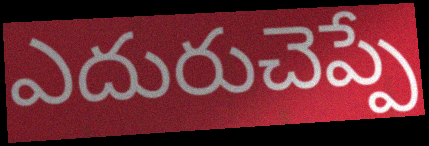
ఎదురుచెప్పే